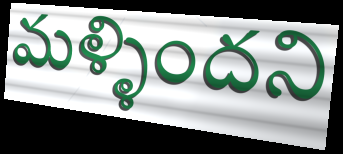
మళ్ళిందని